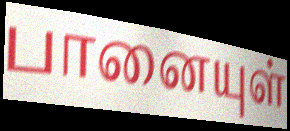
பானையுள்